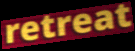
retreat